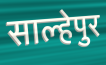
साल्हेपुर